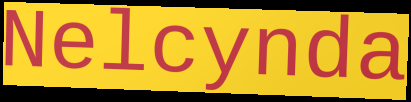
Nelcynda